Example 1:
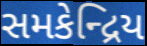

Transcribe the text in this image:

સમકેન્દ્રિય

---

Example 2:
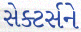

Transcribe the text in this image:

સેક્ટર્સને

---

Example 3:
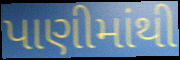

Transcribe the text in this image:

પાણીમાંથી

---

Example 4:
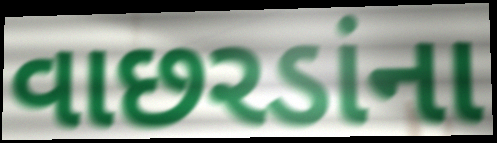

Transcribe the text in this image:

વાછરડાંના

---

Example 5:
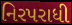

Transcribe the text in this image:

નિરપરાધી